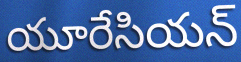
యూరేసియన్